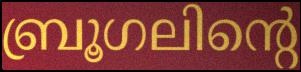
ബ്രൂഗലിന്റെ